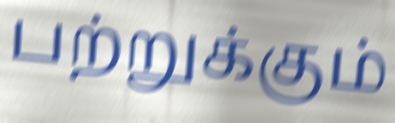
பற்றுக்கும்